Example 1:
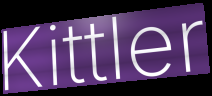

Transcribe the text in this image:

Kittler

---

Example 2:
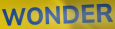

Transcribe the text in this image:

WONDER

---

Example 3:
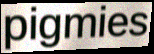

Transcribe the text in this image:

pigmies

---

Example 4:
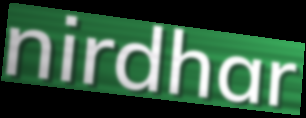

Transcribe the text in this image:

nirdhar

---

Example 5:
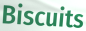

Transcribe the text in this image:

Biscuits